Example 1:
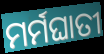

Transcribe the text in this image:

ମର୍ମଘାତୀ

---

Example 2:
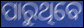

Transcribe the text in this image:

ପାରୁଥିବେ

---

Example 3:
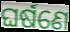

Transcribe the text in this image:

ଘର୍ଷଣେ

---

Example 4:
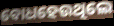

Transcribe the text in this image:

ବୋଧହେଉଥିଲେ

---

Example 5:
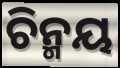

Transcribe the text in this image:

ଚିନ୍ମୟ